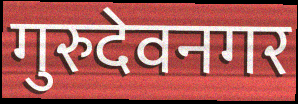
गुरुदेवनगर